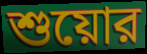
শুয়োর